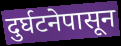
दुर्घटनेपासून